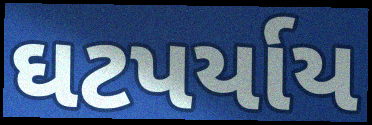
ઘટપર્યાય